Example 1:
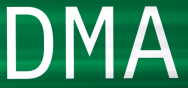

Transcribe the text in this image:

DMA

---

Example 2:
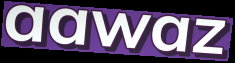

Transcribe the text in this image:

aawaz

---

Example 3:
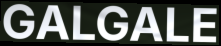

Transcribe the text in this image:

GALGALE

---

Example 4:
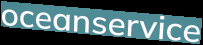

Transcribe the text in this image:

oceanservice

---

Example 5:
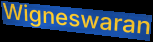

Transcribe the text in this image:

Wigneswaran